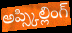
అప్స్కిల్లింగ్